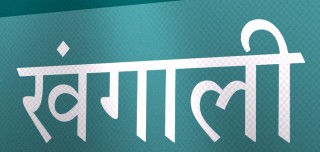
खंगाली